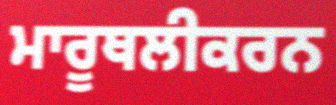
ਮਾਰੂਥਲੀਕਰਨ